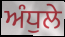
ਅੰਧੁਲੇ